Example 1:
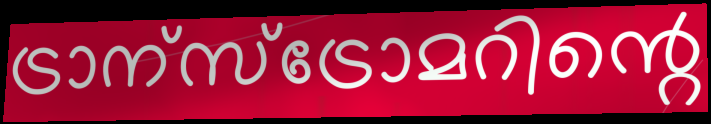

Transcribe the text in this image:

ട്രാന്സ്ട്രോമറിന്റെ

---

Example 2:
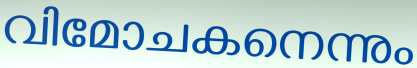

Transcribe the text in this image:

വിമോചകനെന്നും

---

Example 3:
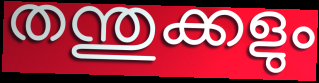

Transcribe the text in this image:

തന്തുക്കളും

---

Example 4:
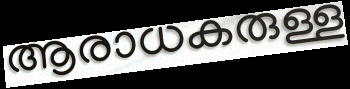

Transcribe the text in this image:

ആരാധകരുള്ള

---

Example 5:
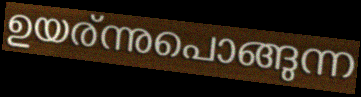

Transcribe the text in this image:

ഉയര്ന്നുപൊങ്ങുന്ന